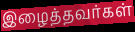
இழைத்தவர்கள்